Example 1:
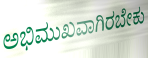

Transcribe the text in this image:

ಅಭಿಮುಖವಾಗಿರಬೇಕು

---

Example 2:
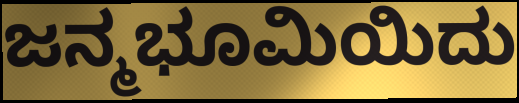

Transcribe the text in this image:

ಜನ್ಮಭೂಮಿಯಿದು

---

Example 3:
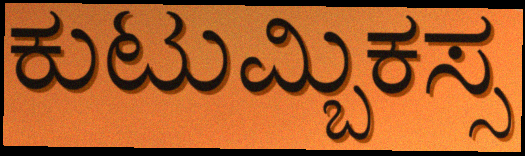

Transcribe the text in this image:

ಕುಟುಮ್ಬಿಕಸ್ಸ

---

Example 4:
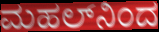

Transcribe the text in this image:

ಮಹಲ್‌ನಿಂದ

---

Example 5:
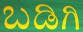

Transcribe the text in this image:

ಬಡಿಗಿ